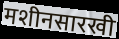
मशीनसारखी